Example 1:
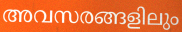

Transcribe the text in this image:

അവസരങ്ങളിലും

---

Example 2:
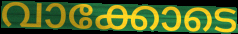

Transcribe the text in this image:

വാക്കോടെ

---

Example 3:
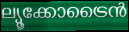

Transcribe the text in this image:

ല്യൂക്കോട്രൈൻ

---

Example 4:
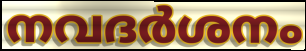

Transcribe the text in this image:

നവദർശനം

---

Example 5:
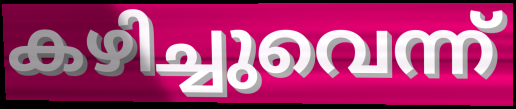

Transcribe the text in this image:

കഴിച്ചുവെന്ന്